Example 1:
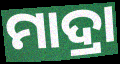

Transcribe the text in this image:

ମାଦ୍ରା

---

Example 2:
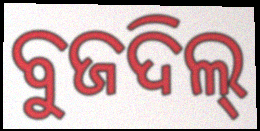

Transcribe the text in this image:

ବୁଜଦିଲ୍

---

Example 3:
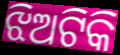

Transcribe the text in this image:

ଝିଅଟିକି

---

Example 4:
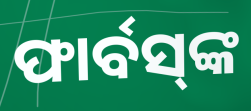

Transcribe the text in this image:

ଫାର୍ବସ୍‌ଙ୍କ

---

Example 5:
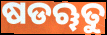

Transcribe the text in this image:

ଷଡୠତୁ